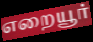
எறையூர்